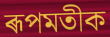
ৰূপমতীক